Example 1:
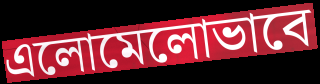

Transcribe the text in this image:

এলোমেলোভাবে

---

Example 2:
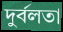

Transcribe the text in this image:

দুর্বলতা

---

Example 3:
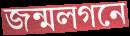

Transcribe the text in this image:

জন্মলগনে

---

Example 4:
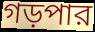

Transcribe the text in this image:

গড়পার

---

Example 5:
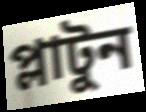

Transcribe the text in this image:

প্লাটুন